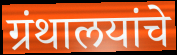
ग्रंथालयांचे